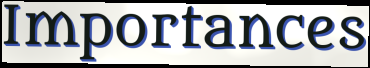
Importances